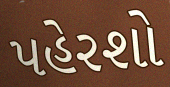
પહેરશો